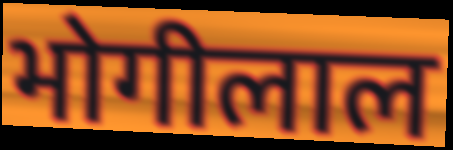
भोगीलाल